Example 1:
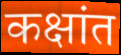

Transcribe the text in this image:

कक्षांत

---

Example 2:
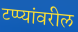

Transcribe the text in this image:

टप्प्यांवरील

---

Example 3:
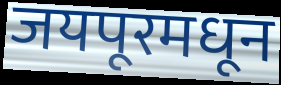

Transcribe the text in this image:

जयपूरमधून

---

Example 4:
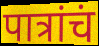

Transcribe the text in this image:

पात्रांचं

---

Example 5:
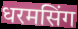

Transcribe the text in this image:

धरमसिंग